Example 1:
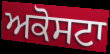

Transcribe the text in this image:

ਅਕੋਸਟਾ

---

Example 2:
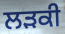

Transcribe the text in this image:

ਲੜਕੀ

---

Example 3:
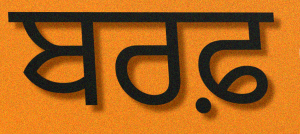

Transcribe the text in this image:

ਬਰਫ਼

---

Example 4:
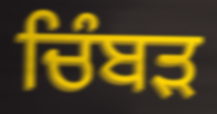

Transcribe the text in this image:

ਚਿੰਬੜ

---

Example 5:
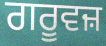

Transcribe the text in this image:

ਗਰੂਵਜ਼